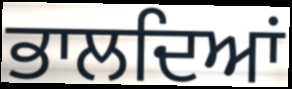
ਭਾਲਦਿਆਂ